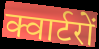
क्वार्टरों